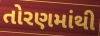
તોરણમાંથી